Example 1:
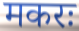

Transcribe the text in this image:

मकरः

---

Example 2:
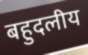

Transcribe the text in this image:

बहुदलीय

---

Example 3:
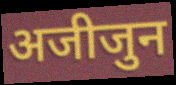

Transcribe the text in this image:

अजीजुन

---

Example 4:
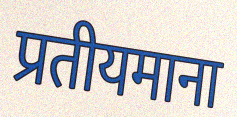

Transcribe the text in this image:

प्रतीयमाना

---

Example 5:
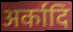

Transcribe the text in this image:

अर्कादि